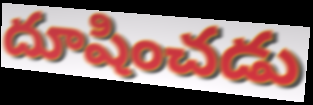
దూషించడు